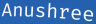
Anushree